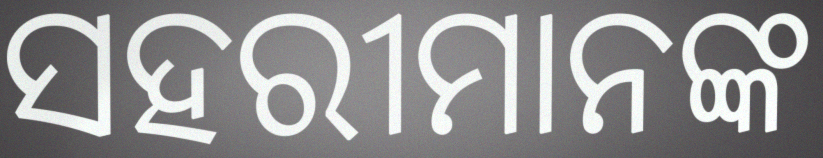
ସହରୀମାନଙ୍କ